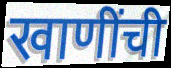
खाणींची